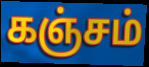
கஞ்சம்